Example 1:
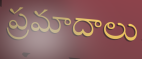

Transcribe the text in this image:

ప్రమాదాలు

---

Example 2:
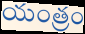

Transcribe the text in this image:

యంత్రం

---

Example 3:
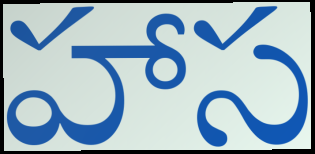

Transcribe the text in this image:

హాస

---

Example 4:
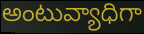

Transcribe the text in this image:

అంటువ్యాధిగా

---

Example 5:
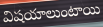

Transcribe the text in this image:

విషయాలుంటాయి